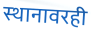
स्थानावरही